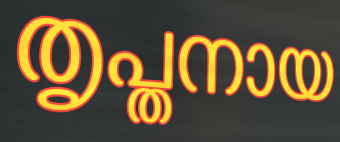
തൃപ്തനായ